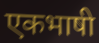
एकभाषी